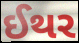
ઈથર